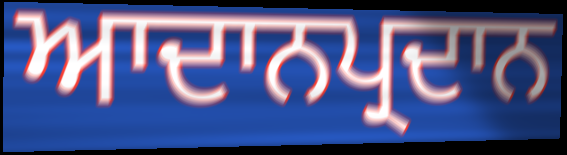
ਆਦਾਨਪ੍ਰਦਾਨ